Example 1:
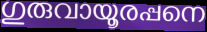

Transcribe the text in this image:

ഗുരുവായൂരപ്പനെ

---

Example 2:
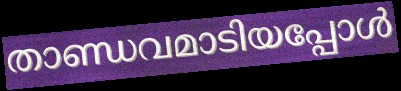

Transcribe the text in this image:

താണ്ഡവമാടിയപ്പോൾ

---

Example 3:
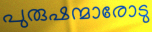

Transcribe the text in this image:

പുരുഷന്മാരോടു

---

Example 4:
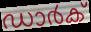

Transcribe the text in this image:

ഡാർക്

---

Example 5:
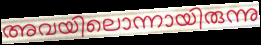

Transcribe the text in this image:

അവയിലൊന്നായിരുന്നു